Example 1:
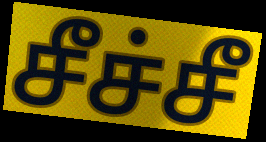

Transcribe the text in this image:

சீச்சீ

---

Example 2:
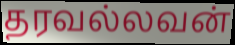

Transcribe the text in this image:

தரவல்லவன்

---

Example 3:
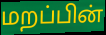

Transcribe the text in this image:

மறப்பின்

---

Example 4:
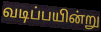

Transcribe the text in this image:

வடிப்பயின்று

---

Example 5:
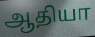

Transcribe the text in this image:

ஆதியா